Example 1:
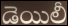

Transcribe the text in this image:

డెయిలీ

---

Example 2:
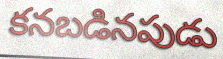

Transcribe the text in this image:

కనబడినపుడు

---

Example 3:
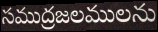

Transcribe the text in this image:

సముద్రజలములను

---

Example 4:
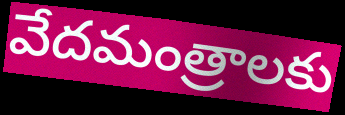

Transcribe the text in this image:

వేదమంత్రాలకు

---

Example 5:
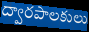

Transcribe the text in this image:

ద్వారపాలకులు